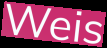
Weis